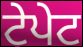
ਟੇਪੇਟ